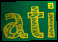
ati